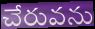
చేరువను